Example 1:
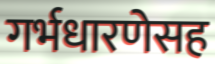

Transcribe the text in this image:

गर्भधारणेसह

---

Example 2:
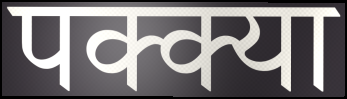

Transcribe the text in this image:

पक्क्या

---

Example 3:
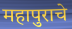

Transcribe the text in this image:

महापुराचे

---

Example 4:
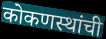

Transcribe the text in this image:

कोकणस्थांची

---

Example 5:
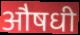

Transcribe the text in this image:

औषधी